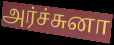
அர்ச்சுனா